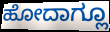
ಹೋದಾಗ್ಲೂ